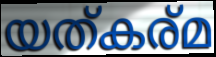
യത്കര്മ